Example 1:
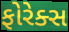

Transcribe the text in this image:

ફોરેક્સ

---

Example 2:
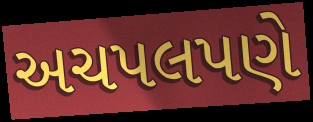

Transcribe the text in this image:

અચપલપણે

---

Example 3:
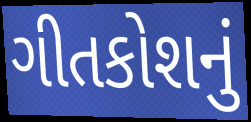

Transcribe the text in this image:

ગીતકોશનું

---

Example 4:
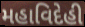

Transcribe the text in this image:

મહાવિદેહી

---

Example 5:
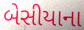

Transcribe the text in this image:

બેસીયાના